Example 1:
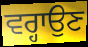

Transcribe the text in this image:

ਵਰ੍ਹਾਉਣ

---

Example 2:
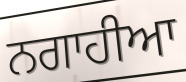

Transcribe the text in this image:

ਨਗਾਹੀਆ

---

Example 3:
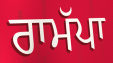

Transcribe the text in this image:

ਰਾਮੱਪਾ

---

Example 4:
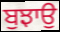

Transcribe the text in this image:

ਬੁਝਾਉ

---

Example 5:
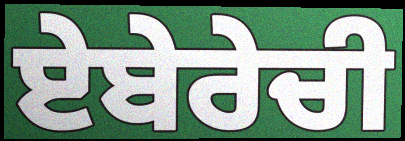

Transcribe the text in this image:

ਏਬੇਰੇਚੀ